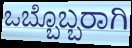
ಒಬ್ಬೊಬ್ಬರಾಗಿ